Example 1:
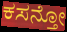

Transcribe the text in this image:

ಕಸನ್ತೋ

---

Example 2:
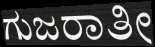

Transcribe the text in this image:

ಗುಜರಾತೀ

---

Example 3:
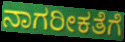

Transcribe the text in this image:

ನಾಗರೀಕತೆಗೆ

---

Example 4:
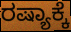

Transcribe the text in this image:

ರಷ್ಯಾಕ್ಕೆ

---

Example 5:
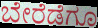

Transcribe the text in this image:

ಬೇರೆಡೆಗೂ